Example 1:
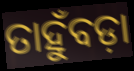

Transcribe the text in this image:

ତାହୁଁବଡ଼ା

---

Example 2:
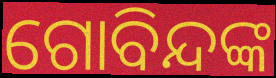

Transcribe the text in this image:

ଗୋବିନ୍ଦଙ୍କ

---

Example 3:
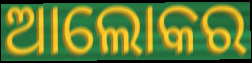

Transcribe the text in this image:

ଆଲୋକର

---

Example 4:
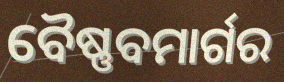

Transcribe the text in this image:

ବୈଷ୍ଣବମାର୍ଗର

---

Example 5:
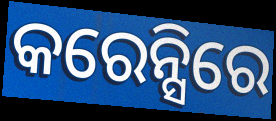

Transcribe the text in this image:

କରେନ୍ସିରେ